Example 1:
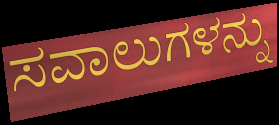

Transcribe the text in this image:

ಸವಾಲುಗಳನ್ನು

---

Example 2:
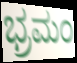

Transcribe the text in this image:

ಭ್ರಮಂ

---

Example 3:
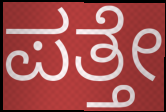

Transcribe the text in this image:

ಪತ್ತೇ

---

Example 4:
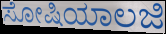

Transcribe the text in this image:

ಸೋಷಿಯಾಲಜಿ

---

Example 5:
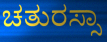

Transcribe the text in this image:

ಚತುರಸ್ಸಾ